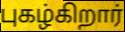
புகழ்கிறார்